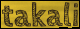
takali